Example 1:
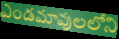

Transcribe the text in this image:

ఎండమావులలోని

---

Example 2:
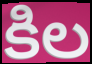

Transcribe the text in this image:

కిల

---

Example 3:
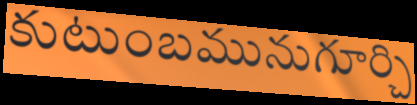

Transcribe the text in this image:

కుటుంబమునుగూర్చి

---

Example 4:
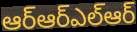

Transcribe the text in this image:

ఆర్ఆర్ఎల్ఆర్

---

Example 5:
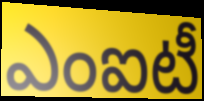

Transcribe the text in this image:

ఎంఐటీ